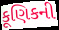
કૂણિકની